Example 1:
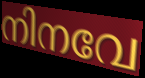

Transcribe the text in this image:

നിനവേ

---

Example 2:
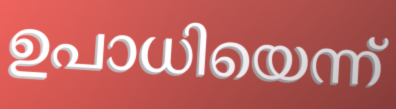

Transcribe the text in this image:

ഉപാധിയെന്ന്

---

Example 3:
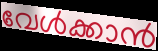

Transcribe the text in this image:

വേൾക്കാൻ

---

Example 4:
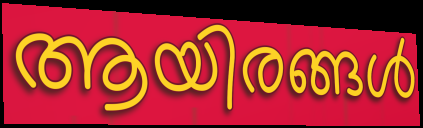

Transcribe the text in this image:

ആയിരങ്ങൾ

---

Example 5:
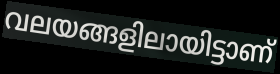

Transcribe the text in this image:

വലയങ്ങളിലായിട്ടാണ്